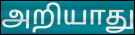
அறியாது